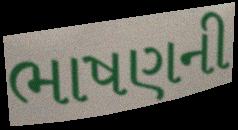
ભાષણની